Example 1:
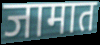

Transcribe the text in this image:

जामात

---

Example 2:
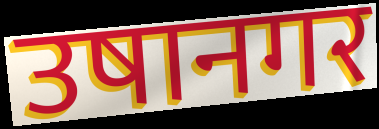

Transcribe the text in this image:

उषानगर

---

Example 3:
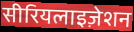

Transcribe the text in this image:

सीरियलाइज़ेशन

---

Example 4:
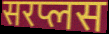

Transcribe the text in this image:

सरप्लस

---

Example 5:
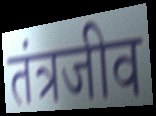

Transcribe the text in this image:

तंत्रजीव